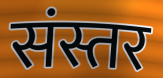
संस्तर